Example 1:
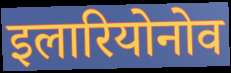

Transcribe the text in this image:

इलारियोनोव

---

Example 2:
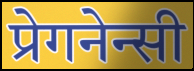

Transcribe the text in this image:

प्रेगनेन्सी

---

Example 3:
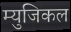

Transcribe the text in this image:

म्युजिकल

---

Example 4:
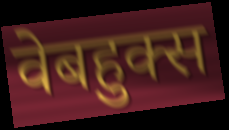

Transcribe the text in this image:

वेबहुक्स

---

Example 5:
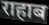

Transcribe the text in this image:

राहाब